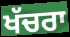
ਖੱਚਰਾ